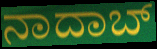
ನಾದಾಬ್